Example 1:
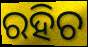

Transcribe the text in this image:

ରହିଚ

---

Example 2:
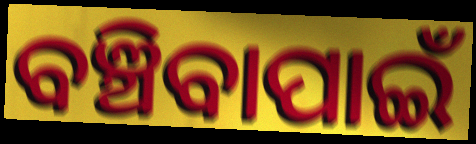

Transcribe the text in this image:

ବଞ୍ଚିବାପାଇଁ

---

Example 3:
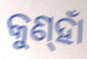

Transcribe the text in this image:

କୁଣ୍‌ହାଁ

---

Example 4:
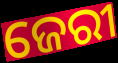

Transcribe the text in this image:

ଜେରୀ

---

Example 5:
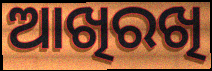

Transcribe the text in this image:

ଆଖିରଖି